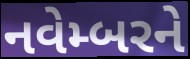
નવેમ્બરને